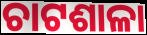
ଚାଟଶାଳା